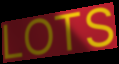
LOTS